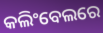
କଲିଂବେଲରେ